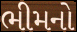
ભીમનો